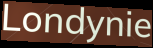
Londynie